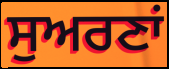
ਸੁਅਰਣਾਂ